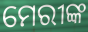
ମେରୀଙ୍କ